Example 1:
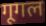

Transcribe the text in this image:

गूगल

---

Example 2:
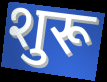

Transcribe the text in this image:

शुरू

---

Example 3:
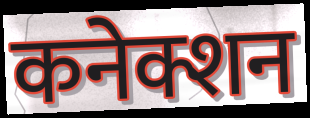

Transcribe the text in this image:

कनेक्शन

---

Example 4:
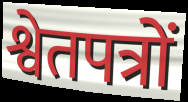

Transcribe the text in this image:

श्वेतपत्रों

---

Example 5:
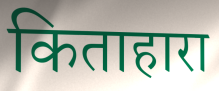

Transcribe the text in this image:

किताहारा